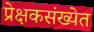
प्रेक्षकसंख्येत